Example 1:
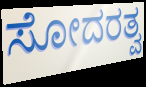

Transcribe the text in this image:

ಸೋದರತ್ವ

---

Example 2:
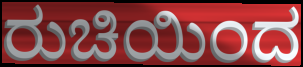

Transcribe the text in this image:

ರುಚಿಯಿಂದ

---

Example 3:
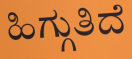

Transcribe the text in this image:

ಹಿಗ್ಗುತಿದೆ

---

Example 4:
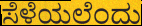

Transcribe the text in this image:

ಸೆಳೆಯಲೆಂದು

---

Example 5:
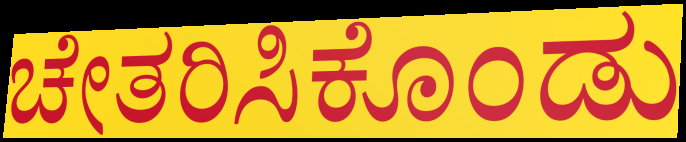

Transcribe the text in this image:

ಚೇತರಿಸಿಕೊಂಡು